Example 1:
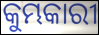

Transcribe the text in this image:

କୁମ୍ଭକାରୀ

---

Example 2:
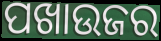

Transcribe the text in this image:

ପଖାଉଜର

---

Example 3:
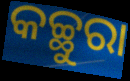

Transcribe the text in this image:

କଚ୍ଛୁରା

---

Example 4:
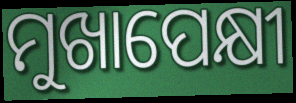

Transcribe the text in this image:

ମୁଖାପେକ୍ଷୀ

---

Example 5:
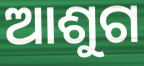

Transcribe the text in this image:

ଆଶୁଗ